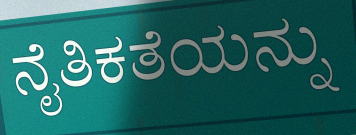
ನೈತಿಕತೆಯನ್ನು